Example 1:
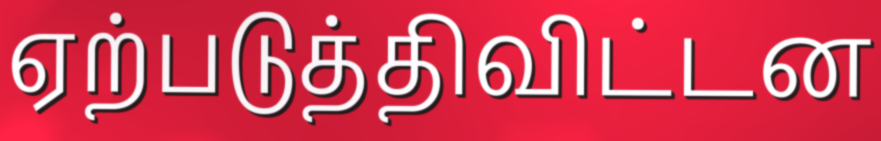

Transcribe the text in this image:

ஏற்படுத்திவிட்டன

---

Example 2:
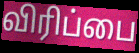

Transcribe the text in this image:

விரிப்பை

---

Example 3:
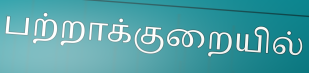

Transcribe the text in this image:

பற்றாக்குறையில்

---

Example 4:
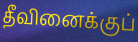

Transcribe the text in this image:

தீவினைக்குப்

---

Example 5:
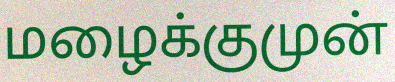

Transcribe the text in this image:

மழைக்குமுன்